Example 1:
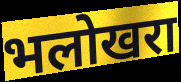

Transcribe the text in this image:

भलोखरा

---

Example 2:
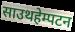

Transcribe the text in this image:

साउथहेम्पटन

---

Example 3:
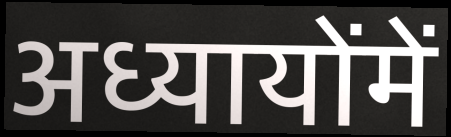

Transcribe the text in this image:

अध्यायोंमें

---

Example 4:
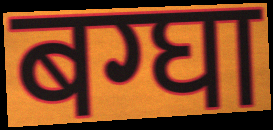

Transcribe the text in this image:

बग्घा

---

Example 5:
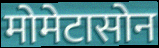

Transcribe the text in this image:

मोमेटासोन